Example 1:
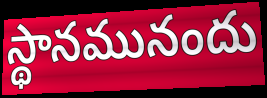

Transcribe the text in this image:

స్థానమునందు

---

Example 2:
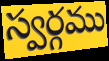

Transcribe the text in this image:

స్వర్గము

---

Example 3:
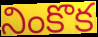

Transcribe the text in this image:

నింకొక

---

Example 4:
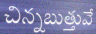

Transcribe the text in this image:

చిన్నబుత్తువే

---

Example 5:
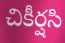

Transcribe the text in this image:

చికీర్షసి